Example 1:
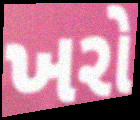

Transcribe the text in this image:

ખરો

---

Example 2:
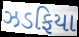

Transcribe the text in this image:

ઝડફિયા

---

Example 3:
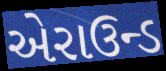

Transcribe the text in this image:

એરાઉન્ડ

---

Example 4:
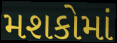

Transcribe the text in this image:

મશકોમાં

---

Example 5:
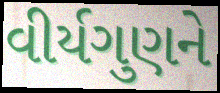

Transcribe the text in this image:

વીર્યગુણને